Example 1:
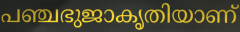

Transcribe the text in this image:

പഞ്ചഭുജാകൃതിയാണ്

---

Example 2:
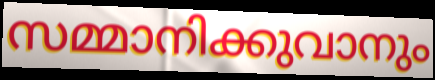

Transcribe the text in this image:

സമ്മാനിക്കുവാനും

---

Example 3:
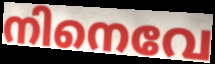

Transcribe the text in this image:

നിനെവേ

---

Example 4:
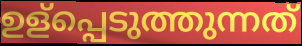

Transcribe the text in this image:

ഉള്പ്പെടുത്തുന്നത്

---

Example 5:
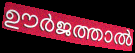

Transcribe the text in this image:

ഊർജത്താൽ